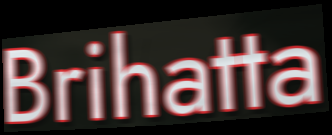
Brihatta